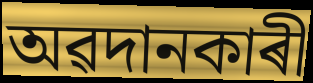
অৱদানকাৰী